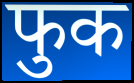
फुक